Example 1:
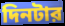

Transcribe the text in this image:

দিনটার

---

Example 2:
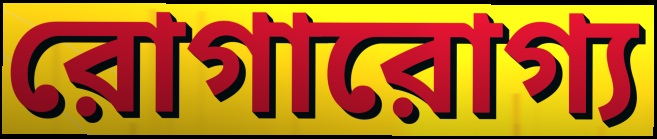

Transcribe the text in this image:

রোগারোগ্য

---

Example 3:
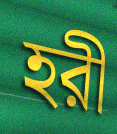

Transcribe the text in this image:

হরী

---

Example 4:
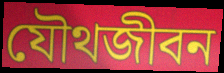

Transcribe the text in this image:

যৌথজীবন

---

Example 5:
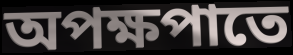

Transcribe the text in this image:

অপক্ষপাতে